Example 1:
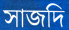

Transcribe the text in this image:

সাজদি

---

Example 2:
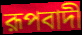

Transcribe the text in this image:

রূপবাদী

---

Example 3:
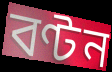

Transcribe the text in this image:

বণ্টন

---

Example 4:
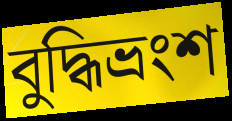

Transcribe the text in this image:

বুদ্ধিভ্রংশ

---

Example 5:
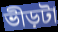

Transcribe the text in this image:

ভীড়টা